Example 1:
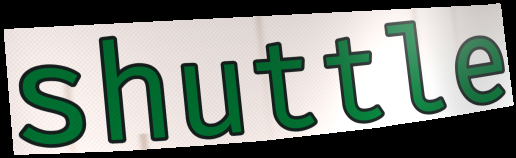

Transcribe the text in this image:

shuttle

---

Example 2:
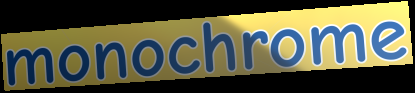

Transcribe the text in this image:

monochrome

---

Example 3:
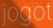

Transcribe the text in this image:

jogot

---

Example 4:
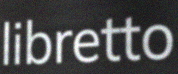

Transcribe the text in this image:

libretto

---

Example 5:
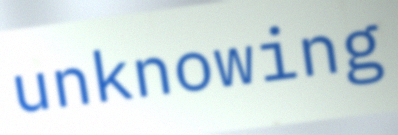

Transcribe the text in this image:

unknowing